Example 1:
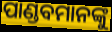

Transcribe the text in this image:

ପାଣ୍ଡବମାନଙ୍କୁ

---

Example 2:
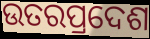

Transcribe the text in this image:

ଉତରପ୍ରଦେଶ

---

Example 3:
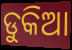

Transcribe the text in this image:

ଡୁକିଆ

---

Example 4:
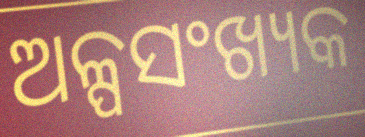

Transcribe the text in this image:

ଅଳ୍ପସଂଖ୍ୟକ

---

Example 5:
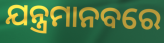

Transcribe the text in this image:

ଯନ୍ତ୍ରମାନବରେ